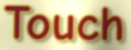
Touch